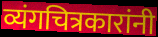
व्यंगचित्रकारांनी